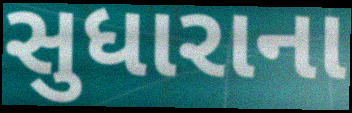
સુધારાના